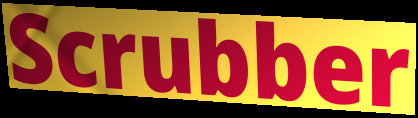
Scrubber